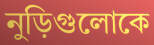
নুড়িগুলোকে